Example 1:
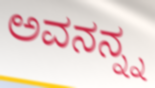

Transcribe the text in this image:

ಅವನನ್ನ್ನ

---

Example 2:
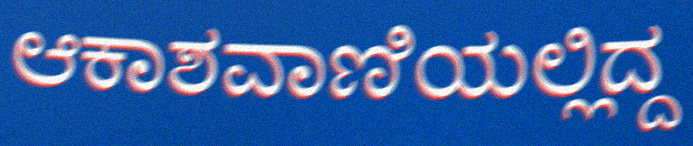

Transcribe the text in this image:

ಆಕಾಶವಾಣಿಯಲ್ಲಿದ್ದ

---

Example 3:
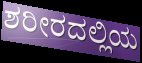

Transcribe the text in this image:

ಶರೀರದಲ್ಲಿಯ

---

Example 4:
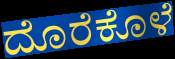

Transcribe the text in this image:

ದೊರೆಕೊಳೆ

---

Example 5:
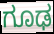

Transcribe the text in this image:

ಗೂಢ